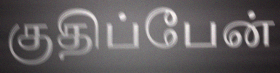
குதிப்பேன்